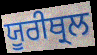
ਯੂਰੀਥ੍ਰਲ